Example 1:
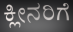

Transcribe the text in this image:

ಕ್ಲೀನರಿಗೆ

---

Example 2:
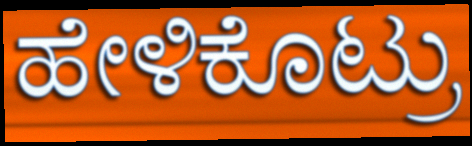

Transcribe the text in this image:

ಹೇಳಿಕೊಟ್ರು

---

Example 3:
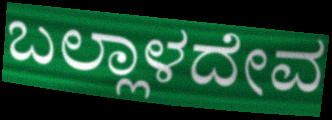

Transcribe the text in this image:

ಬಲ್ಲಾಳದೇವ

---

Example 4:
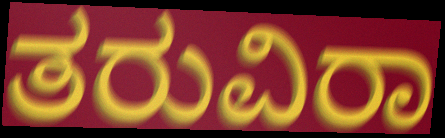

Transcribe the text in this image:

ತರುವಿರಾ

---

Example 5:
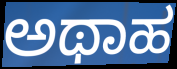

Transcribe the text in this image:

ಅಥಾಹ